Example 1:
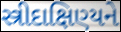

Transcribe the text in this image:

સ્ત્રીદાક્ષિણ્યને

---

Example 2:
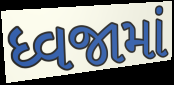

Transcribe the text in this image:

ધ્વજામાં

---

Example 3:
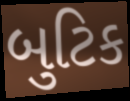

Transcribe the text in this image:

બુટિક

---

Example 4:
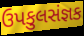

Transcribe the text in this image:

ઉપકુલસંજ્ઞક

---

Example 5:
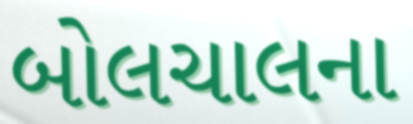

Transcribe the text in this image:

બોલચાલના